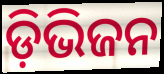
ଡ଼ିଭିଜନ